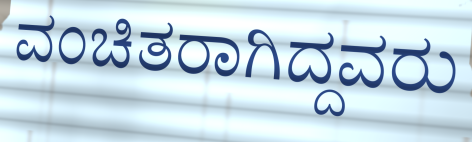
ವಂಚಿತರಾಗಿದ್ದವರು